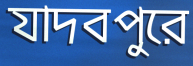
যাদবপুরে